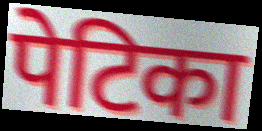
पेटिका